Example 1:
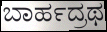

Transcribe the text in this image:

ಬಾರ್ಹದ್ರಥ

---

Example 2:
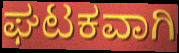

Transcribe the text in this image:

ಘಟಕವಾಗಿ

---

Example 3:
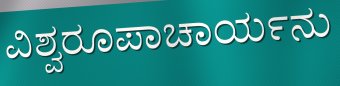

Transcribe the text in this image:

ವಿಶ್ವರೂಪಾಚಾರ್ಯನು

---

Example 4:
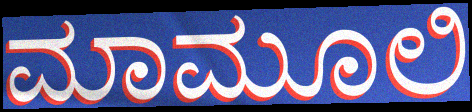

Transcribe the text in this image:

ಮಾಮೂಲಿ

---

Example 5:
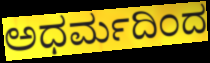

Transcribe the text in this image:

ಅಧರ್ಮದಿಂದ